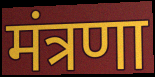
मंत्रणा